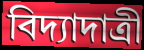
বিদ্যাদাত্রী